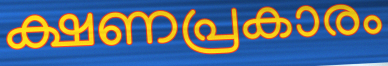
ക്ഷണപ്രകാരം